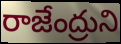
రాజేంద్రుని